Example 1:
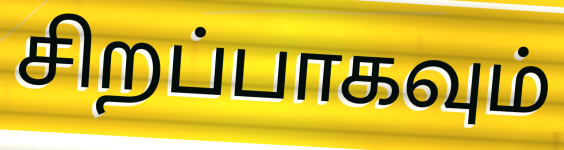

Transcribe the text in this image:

சிறப்பாகவும்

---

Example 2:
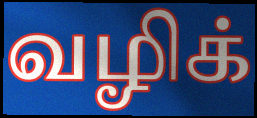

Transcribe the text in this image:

வழிக்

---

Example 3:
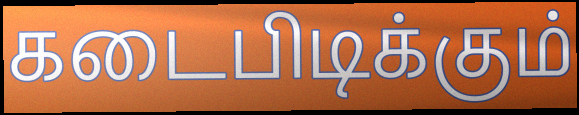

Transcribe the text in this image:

கடைபிடிக்கும்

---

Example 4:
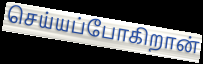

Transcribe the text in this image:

செய்யப்போகிறான்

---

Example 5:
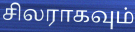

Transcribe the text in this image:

சிலராகவும்